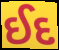
ઈદ